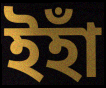
ইহাঁ